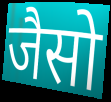
जैसो